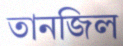
তানজিল